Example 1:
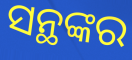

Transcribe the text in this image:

ସନ୍ଥଙ୍କର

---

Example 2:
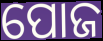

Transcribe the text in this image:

ପୋଜ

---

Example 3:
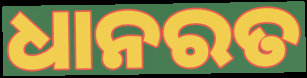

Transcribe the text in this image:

ଧାନରତ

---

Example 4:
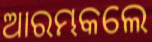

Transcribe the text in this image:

ଆରମ୍ଭକଲେ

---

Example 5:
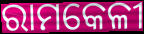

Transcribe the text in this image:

ରାମକେଳୀ